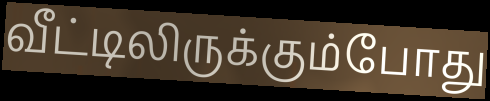
வீட்டிலிருக்கும்போது